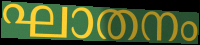
ഘാതനം